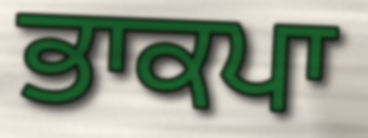
ਭਾਕਪਾ